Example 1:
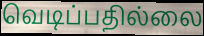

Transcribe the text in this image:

வெடிப்பதில்லை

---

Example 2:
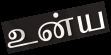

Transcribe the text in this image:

உன்ய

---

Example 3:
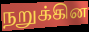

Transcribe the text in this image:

நறுக்கின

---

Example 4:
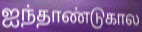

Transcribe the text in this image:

ஐந்தாண்டுகால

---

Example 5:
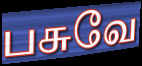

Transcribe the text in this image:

பசுவே